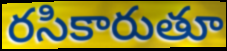
రసికారుతూ